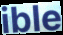
ible